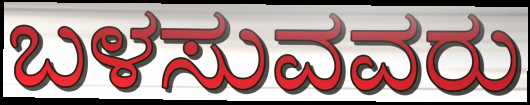
ಬಳಸುವವರು